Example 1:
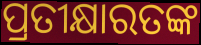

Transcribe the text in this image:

ପ୍ରତୀକ୍ଷାରତଙ୍କ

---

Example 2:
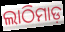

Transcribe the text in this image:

ଲାଠିମାଡ଼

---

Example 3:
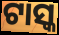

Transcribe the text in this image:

ଟାସ୍କ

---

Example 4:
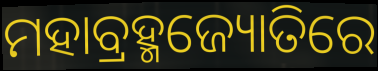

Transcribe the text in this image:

ମହାବ୍ରହ୍ମଜ୍ୟୋତିରେ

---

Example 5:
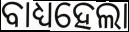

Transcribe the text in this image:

ବାଧ୍ୟହେଲା